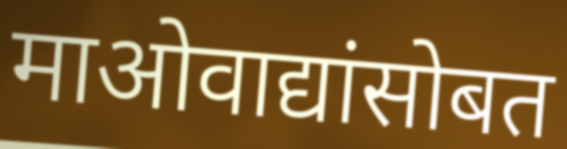
माओवाद्यांसोबत